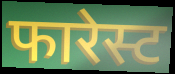
फारेस्ट